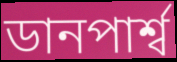
ডানপার্শ্ব